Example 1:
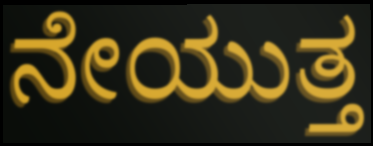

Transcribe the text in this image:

ನೇಯುತ್ತ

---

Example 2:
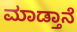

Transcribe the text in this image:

ಮಾಡ್ತಾನೆ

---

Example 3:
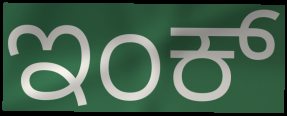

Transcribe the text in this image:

ಇಂಕ್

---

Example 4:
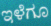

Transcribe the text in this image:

ಇಳೆಗೂ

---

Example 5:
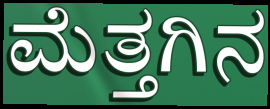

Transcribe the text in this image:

ಮೆತ್ತಗಿನ